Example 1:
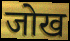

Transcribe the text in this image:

जोख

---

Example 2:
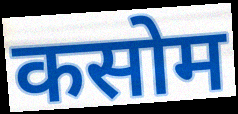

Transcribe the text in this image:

कसोम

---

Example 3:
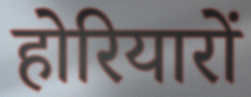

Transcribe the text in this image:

होरियारों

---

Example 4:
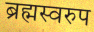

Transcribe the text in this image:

ब्रह्मस्वरुप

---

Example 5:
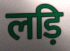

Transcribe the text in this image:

लड़ि